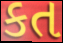
કત